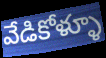
వేడికోళ్ళూ